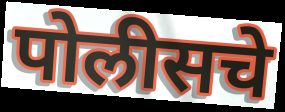
पोलीसचे